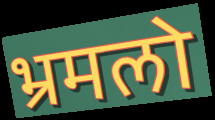
भ्रमलो